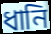
ধানি